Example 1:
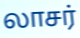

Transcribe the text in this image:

லாசர்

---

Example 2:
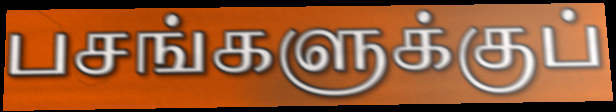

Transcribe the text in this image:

பசங்களுக்குப்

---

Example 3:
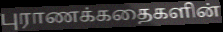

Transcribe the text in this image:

புராணக்கதைகளின்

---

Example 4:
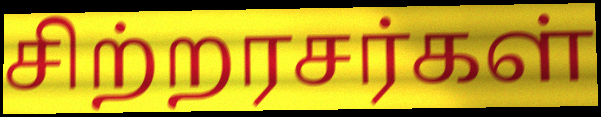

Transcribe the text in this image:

சிற்றரசர்கள்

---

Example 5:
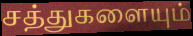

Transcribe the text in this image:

சத்துகளையும்